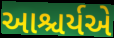
આશ્ચર્યએ